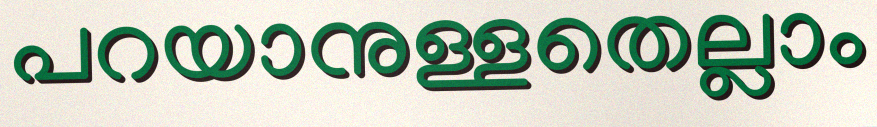
പറയാനുള്ളതെല്ലാം